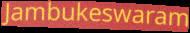
Jambukeswaram